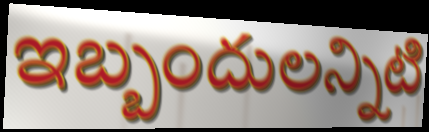
ఇబ్బందులన్నిటి